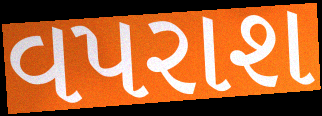
વપરાશ